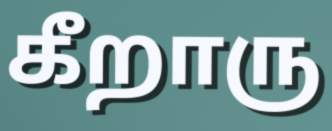
கீறாரு